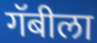
गॅबीला